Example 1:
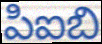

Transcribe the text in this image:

పిఐబి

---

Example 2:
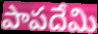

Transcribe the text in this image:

పాపదేమి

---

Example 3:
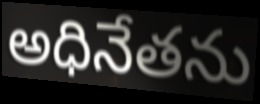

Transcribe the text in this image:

అధినేతను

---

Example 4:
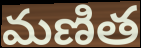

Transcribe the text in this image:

మణిత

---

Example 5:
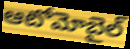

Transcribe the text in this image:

ఆటోమోబైల్